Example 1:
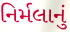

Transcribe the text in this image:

નિર્મલાનું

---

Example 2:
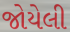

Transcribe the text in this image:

જોયેલી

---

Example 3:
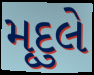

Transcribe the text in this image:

મૃદુલે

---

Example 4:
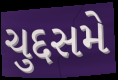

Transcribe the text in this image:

ચુદ્દસમે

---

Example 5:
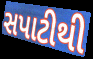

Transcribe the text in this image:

સપાટીથી